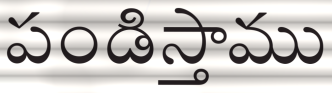
పండిస్తాము